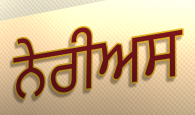
ਨੇਰੀਅਸ